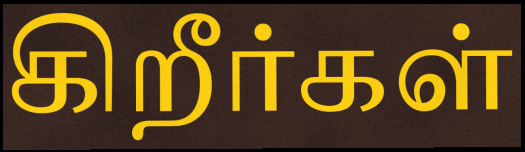
கிறீர்கள்